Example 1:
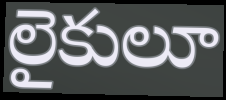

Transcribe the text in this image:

లైకులూ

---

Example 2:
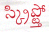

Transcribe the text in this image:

స్క్రిప్ట్తో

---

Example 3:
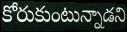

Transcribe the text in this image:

కోరుకుంటున్నాడని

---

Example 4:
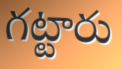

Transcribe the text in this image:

గట్టారు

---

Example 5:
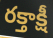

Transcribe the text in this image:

రక్తాక్షీ